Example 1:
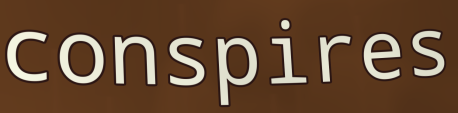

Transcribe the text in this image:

conspires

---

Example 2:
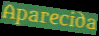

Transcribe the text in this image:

Aparecida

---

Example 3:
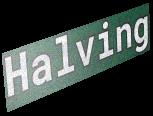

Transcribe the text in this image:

Halving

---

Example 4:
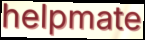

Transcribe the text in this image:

helpmate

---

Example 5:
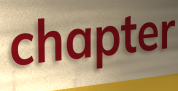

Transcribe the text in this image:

chapter